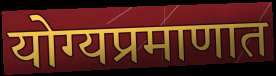
योग्यप्रमाणात